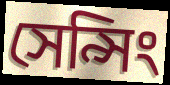
সেন্সিং